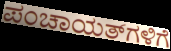
ಪಂಚಾಯತ್‌ಗಳಿಗೆ